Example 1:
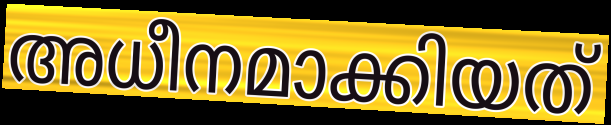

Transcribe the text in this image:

അധീനമാക്കിയത്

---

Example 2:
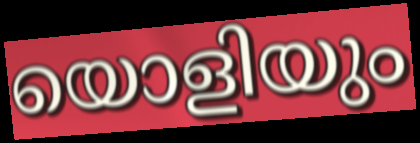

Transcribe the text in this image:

യൊളിയും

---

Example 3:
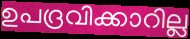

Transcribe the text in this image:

ഉപദ്രവിക്കാറില്ല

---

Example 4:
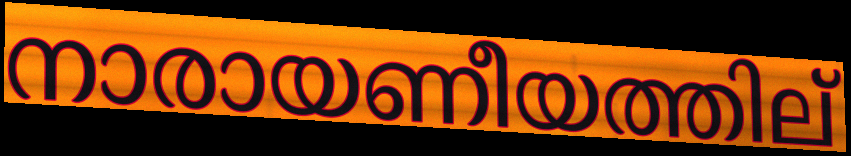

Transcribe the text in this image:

നാരായണീയത്തില്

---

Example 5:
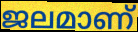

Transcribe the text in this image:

ജലമാണ്